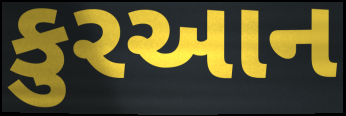
કુરઆન